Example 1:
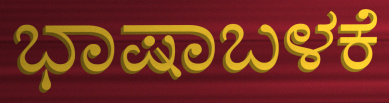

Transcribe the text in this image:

ಭಾಷಾಬಳಕೆ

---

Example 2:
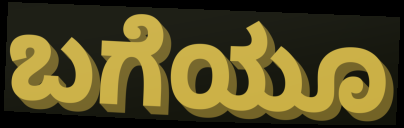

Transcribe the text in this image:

ಬಗೆಯೂ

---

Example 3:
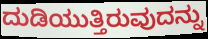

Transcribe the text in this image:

ದುಡಿಯುತ್ತಿರುವುದನ್ನು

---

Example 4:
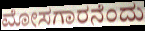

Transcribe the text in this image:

ಮೋಸಗಾರನೆಂದು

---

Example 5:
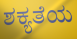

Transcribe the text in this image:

ಶಕ್ಯತೆಯ